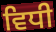
ਵਿਧੀ